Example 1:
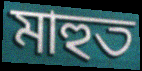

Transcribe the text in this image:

মাহুত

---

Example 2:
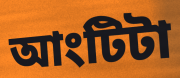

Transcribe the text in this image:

আংটিটা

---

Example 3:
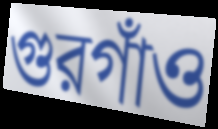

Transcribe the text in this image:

গুরগাঁও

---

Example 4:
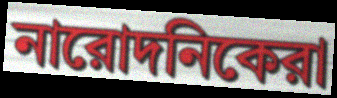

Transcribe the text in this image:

নারোদনিকেরা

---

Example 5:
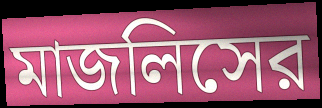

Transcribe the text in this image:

মাজলিসের